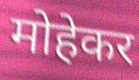
मोहेकर